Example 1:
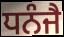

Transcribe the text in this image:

ਧਨੰਜੈ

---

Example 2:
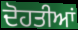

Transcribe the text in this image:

ਦੋਹਤੀਆਂ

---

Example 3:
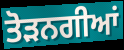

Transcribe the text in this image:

ਤੋੜਨਗੀਆਂ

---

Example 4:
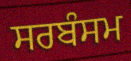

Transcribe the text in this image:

ਸਰਬੰਸਮ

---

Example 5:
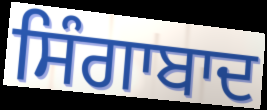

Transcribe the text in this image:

ਸਿੰਗਾਬਾਦ